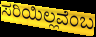
ಸರಿಯಿಲ್ಲವೆಂಬ